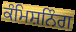
ਕੰਮਿਸ਼ਨਿੰਗ